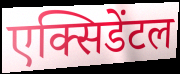
एक्सिडेंटल